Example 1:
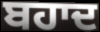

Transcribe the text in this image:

ਬਹਾਦ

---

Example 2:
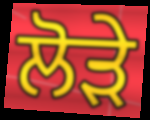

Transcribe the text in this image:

ਲੋੜੇ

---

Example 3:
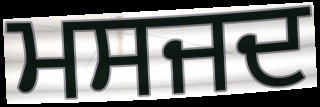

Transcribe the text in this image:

ਮਸਜਦ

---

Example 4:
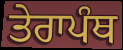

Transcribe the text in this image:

ਤੇਰਾਪੰਥ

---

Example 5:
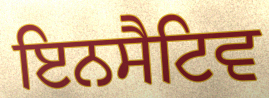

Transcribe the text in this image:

ਇਨਸੈਟਿਵ